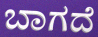
ಬಾಗದೆ